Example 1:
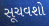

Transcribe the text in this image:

સૂચવશો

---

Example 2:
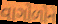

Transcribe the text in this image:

વાગોળોને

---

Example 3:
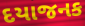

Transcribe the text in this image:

દયાજનક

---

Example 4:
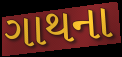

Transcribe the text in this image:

ગાથના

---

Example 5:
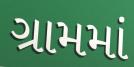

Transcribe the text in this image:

ગ્રામમાં